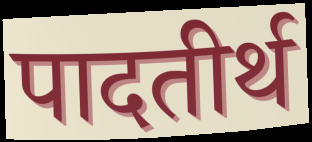
पादतीर्थ